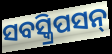
ସବସ୍କ୍ରିପସନ୍